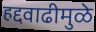
हद्दवाढीमुळे